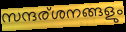
സന്ദര്ശനങ്ങളും